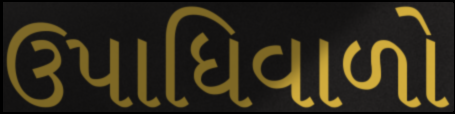
ઉપાધિવાળો